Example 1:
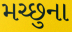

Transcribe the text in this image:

મચ્છુના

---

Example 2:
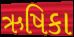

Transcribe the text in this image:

ઋષિકા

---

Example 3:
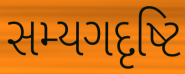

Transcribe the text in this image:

સમ્યગદૃષ્ટિ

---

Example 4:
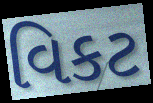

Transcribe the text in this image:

વિકટ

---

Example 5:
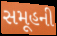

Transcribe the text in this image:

સમૂહની